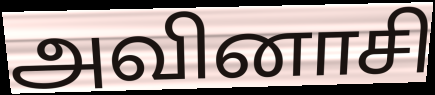
அவினாசி